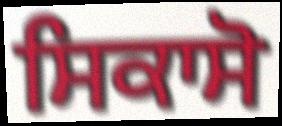
ਸਿਕਾਸੋ